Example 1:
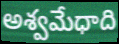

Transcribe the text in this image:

అశ్వమేధాది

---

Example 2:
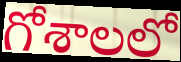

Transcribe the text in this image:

గోశాలలో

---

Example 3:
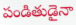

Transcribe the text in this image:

పండితుడైనా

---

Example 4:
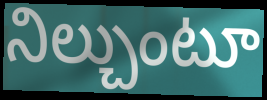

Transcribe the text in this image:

నిల్చుంటూ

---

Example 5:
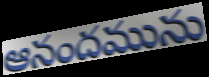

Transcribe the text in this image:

ఆనందమును